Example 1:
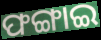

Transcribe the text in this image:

ଫଙ୍ଗାଇ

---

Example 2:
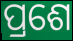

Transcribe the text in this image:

ପ୍ରଶେ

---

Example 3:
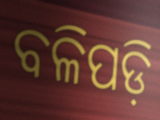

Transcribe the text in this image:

ବଳିପଡ଼ି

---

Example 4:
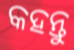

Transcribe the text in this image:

କହନ୍ତୁ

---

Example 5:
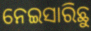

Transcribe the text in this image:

ନେଇସାରିଛୁ